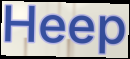
Heep